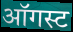
ऑगस्ट